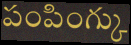
పంపింగ్కు